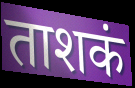
ताशकं